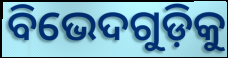
ବିଭେଦଗୁଡ଼ିକୁ